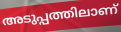
അടുപ്പത്തിലാണ്